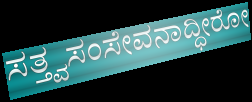
ಸತ್ತ್ವಸಂಸೇವನಾದ್ಧೀರೋ